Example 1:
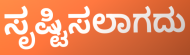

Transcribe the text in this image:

ಸೃಷ್ಟಿಸಲಾಗದು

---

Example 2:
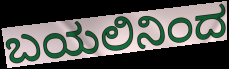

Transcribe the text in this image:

ಬಯಲಿನಿಂದ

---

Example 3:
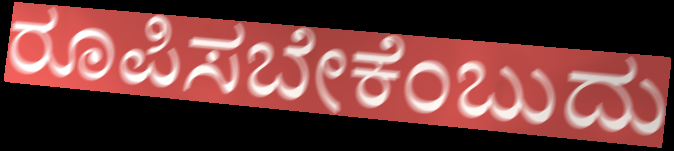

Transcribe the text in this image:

ರೂಪಿಸಬೇಕೆಂಬುದು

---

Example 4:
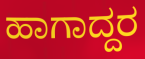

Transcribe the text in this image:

ಹಾಗಾದ್ದರ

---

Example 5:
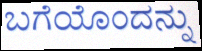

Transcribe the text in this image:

ಬಗೆಯೊಂದನ್ನು